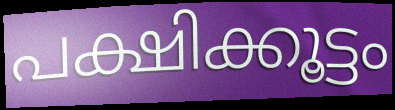
പക്ഷിക്കൂട്ടം